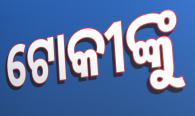
ଟୋକୀଙ୍କୁ